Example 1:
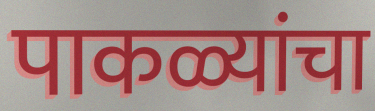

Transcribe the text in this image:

पाकळ्यांचा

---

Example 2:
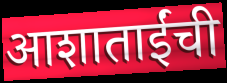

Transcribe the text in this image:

आशाताईंची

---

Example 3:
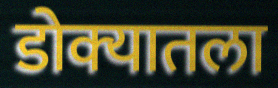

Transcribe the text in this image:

डोक्‍यातला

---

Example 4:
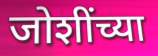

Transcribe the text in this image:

जोशींच्या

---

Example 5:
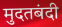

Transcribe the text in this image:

मुदतबंदी